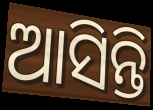
ଆସିନ୍ତି